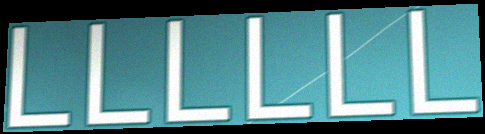
LLLLLL